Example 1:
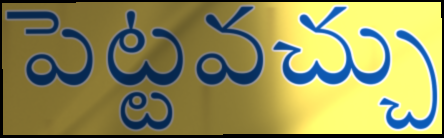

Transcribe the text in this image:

పెట్టవచ్చు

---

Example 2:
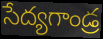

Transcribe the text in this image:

సేద్యగాండ్ర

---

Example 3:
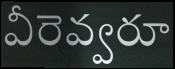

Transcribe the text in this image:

వీరెవ్వరూ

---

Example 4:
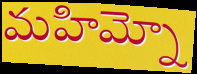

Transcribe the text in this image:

మహిమ్నో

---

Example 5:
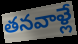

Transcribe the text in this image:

తనవాళ్లే